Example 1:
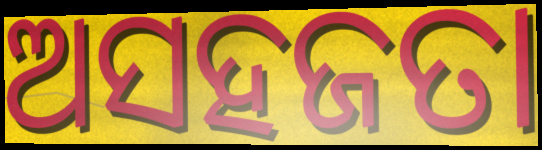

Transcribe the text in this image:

ଅସହଜତା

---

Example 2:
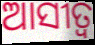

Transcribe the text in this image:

ଆସୀତ୍ବ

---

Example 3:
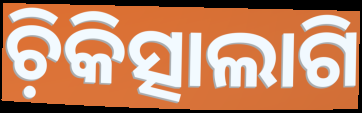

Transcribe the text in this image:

ଚ଼ିକିତ୍ସାଲାଗି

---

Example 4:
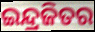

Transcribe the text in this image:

ଇନ୍ଦ୍ରଜିତର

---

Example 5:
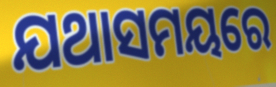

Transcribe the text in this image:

ଯଥାସମୟରେ